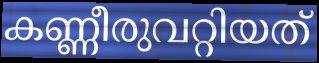
കണ്ണീരുവറ്റിയത്